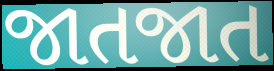
જાતજાત